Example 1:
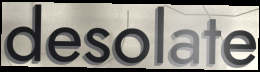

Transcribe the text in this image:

desolate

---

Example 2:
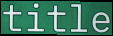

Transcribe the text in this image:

title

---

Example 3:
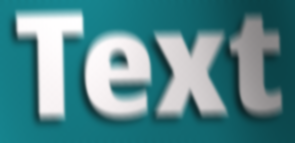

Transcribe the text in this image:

Text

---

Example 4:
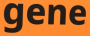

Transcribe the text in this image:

gene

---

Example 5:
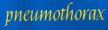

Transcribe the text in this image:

pneumothorax